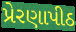
પ્રેરણાપીઠ